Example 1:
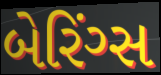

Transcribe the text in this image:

બેરિંગ્સ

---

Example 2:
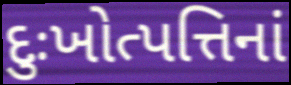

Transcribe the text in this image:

દુઃખોત્પત્તિનાં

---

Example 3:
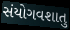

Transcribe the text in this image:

સંયોગવશાતુ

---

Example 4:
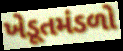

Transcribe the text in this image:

ખેડૂતમંડળો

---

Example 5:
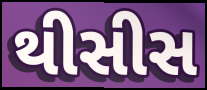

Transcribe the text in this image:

થીસીસ